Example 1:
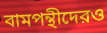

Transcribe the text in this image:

বামপন্থীদেরও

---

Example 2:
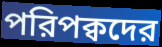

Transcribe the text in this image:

পরিপক্বদের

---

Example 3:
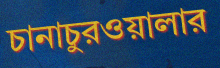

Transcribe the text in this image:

চানাচুরওয়ালার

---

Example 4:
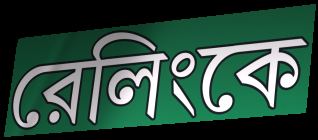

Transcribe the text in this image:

রেলিংকে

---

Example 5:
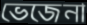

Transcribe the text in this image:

ভেজেনা